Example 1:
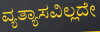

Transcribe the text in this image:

ವ್ಯತ್ಯಾಸವಿಲ್ಲದೇ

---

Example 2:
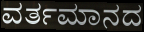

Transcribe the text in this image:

ವರ್ತಮಾನದ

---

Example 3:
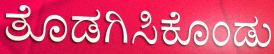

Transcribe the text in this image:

ತೊಡಗಿಸಿಕೊಂಡು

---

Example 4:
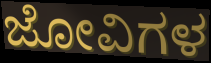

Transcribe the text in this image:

ಜೋವಿಗಳ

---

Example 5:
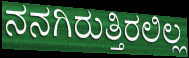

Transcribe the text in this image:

ನನಗಿರುತ್ತಿರಲಿಲ್ಲ